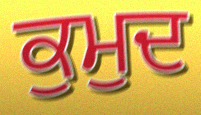
ਕੁਮੁਦ